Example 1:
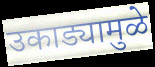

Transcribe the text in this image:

उकाड्यामुळे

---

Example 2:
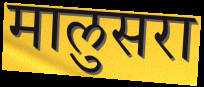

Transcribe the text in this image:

मालुसरा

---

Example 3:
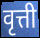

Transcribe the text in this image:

वृत्ती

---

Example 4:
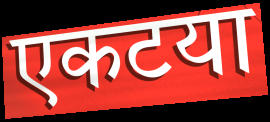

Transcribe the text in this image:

एकटया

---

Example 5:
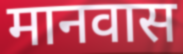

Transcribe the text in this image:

मानवास